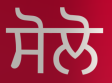
ਸੋਲੋ